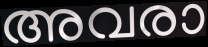
അവരാ